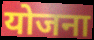
योजना